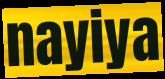
nayiya